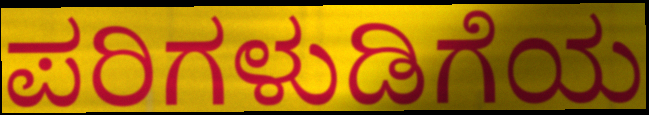
ಪರಿಗಳುಡಿಗೆಯ